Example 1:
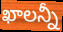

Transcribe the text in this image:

ఖాలన్నీ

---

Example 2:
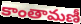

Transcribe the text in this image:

కాంతామణీ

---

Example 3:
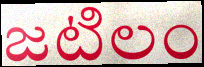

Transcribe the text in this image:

జటిలం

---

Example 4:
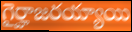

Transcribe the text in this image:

గైర్హాజరయ్యాయి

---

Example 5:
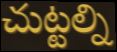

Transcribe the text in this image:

చుట్టల్ని